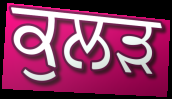
ਕੁਲੜ